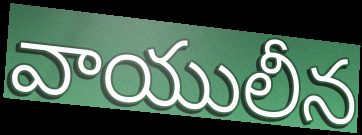
వాయులీన